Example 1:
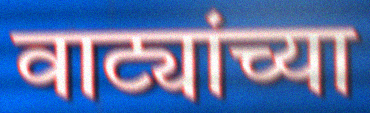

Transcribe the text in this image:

वाट्यांच्या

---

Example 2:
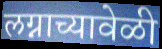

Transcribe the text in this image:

लग्नाच्यावेळी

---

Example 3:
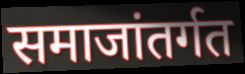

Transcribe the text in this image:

समाजांतर्गत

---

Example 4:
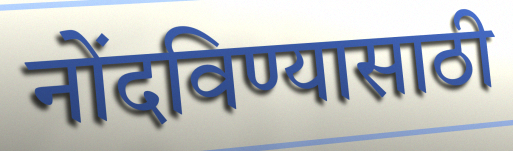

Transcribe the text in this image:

नोंदविण्यासाठी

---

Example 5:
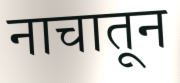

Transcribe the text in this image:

नाचातून